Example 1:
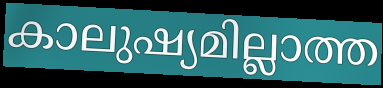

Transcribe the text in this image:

കാലുഷ്യമില്ലാത്ത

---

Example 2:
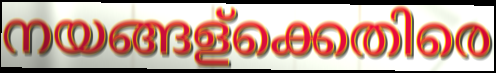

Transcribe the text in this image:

നയങ്ങള്ക്കെതിരെ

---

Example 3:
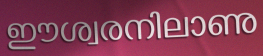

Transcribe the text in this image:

ഈശ്വരനിലാണു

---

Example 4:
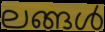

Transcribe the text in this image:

ലങ്ങൾ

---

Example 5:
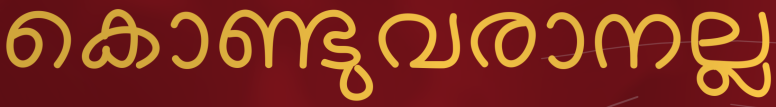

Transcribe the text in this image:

കൊണ്ടുവരാനല്ല